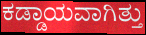
ಕಡ್ಡಾಯವಾಗಿತ್ತು